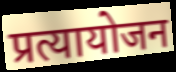
प्रत्यायोजन